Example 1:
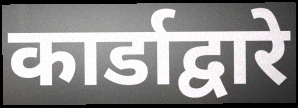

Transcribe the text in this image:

कार्डाद्वारे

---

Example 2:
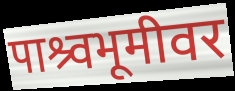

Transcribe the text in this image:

पाश्र्वभूमीवर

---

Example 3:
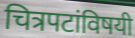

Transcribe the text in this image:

चित्रपटांविषयी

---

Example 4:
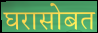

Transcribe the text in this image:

घरासोबत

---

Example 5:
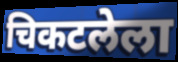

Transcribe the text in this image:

चिकटलेला